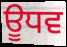
ਊਧਵ